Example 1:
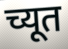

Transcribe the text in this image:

च्यूत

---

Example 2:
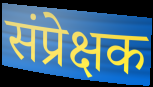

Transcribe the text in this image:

संप्रेक्षक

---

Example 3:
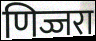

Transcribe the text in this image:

णिज्जरा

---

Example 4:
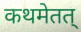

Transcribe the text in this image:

कथमेतत्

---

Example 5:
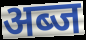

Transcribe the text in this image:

अब्ज